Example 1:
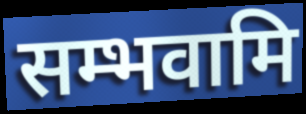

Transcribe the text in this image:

सम्भवामि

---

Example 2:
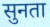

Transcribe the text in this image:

सुनता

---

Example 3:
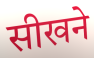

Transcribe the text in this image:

सीखने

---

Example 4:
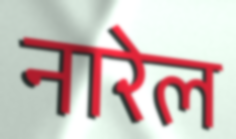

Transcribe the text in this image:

नारेल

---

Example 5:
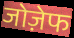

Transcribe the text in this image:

जोज़ेफ